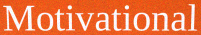
Motivational